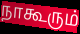
நாகூரும்